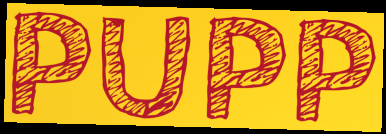
PUPP